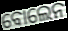
ବୋଲେନ